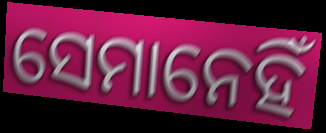
ସେମାନେହିଁ